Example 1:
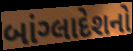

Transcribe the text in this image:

બાંગ્લાદેશનો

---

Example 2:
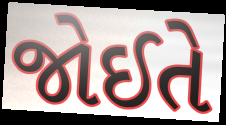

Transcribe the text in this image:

જોઈતે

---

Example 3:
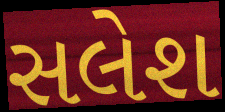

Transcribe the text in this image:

સલેશ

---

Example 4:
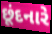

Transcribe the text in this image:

છૂંદનારે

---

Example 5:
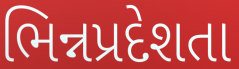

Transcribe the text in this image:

ભિન્નપ્રદેશતા